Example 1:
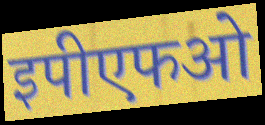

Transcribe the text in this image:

इपीएफओ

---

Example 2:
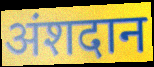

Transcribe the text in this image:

अंशदान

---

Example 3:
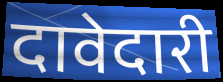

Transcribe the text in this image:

दावेदारी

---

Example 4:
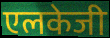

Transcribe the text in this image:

एलकेजी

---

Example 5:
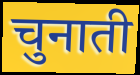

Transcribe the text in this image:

चुनाती